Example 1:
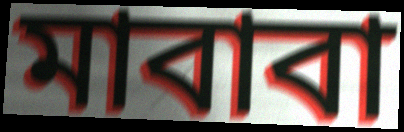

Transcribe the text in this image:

মাবাবা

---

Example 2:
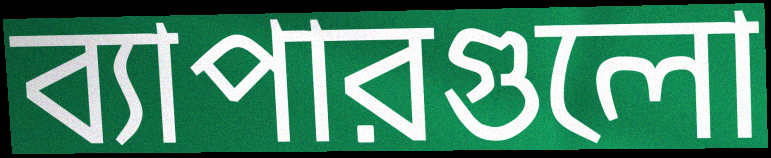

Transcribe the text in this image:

ব্যাপারগুলো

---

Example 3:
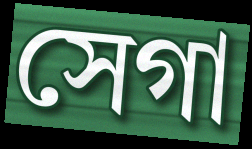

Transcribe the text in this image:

সেগা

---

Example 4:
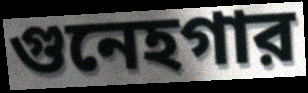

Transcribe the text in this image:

গুনেহগার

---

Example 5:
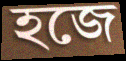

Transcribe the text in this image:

হজে